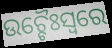
ଉଚ୍ଚୈଃସ୍ୱରେ